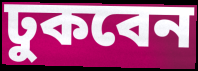
ঢুকবেন